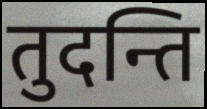
तुदन्ति